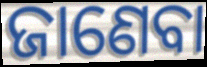
ଜାଣେବା